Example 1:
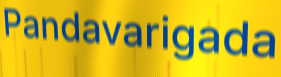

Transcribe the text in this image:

Pandavarigada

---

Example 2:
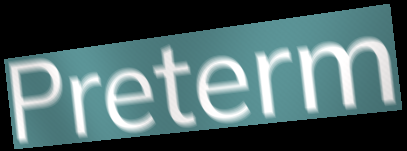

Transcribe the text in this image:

Preterm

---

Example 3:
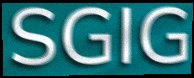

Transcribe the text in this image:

SGIG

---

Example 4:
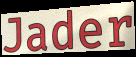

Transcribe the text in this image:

Jader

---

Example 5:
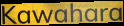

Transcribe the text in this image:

Kawahara